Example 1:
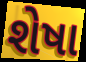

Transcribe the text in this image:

શેષા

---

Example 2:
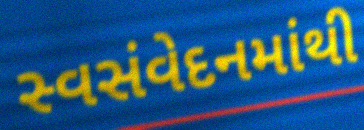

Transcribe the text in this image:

સ્વસંવેદનમાંથી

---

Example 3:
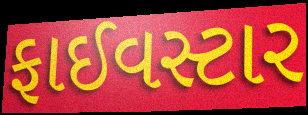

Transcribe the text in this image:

ફાઈવસ્ટાર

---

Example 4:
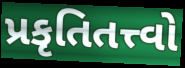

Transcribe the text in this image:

પ્રકૃતિતત્ત્વો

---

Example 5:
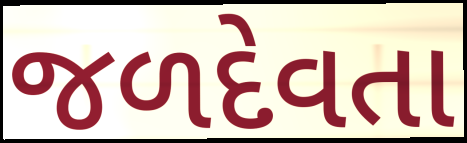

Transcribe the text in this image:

જળદેવતા